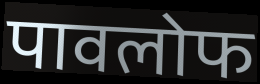
पावलोफ